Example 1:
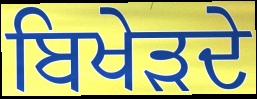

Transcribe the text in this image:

ਬਿਖੇੜਦੇ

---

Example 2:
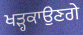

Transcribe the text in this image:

ਖੜ੍ਹਕਾਉਣਗੇ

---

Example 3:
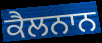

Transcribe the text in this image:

ਕੈਲਨਾਨ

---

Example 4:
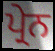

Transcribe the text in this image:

ਪ੍ਰੇਨ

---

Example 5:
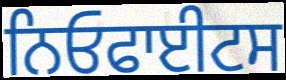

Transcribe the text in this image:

ਨਿਓਫਾਈਟਸ